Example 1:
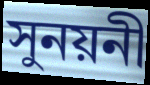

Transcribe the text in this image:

সুনয়নী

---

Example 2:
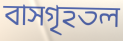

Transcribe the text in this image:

বাসগৃহতল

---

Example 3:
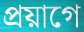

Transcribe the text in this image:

প্রয়াগে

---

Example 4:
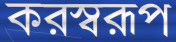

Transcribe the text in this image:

করস্বরূপ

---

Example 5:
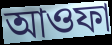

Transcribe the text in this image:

আওফা